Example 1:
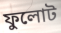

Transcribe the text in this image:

ফুলোট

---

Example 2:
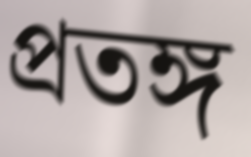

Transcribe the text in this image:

প্রতঙ্গ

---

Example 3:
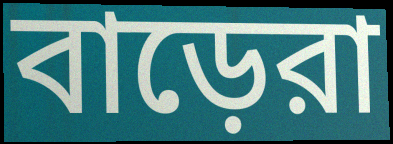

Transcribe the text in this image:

বাড়েরা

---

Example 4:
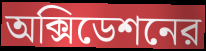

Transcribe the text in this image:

অক্সিডেশনের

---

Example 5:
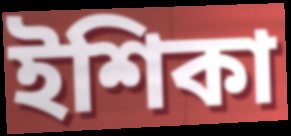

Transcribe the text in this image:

ইশিকা